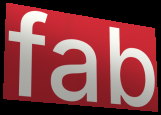
fab